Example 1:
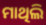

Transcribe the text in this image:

ମାଥିଲି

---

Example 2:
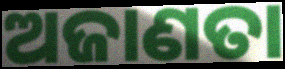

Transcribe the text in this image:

ଅଜାଣତା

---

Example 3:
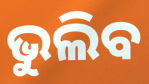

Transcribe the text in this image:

ଭୁଲିବ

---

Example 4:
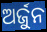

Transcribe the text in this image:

ଅର୍ଜୁନ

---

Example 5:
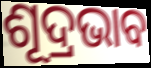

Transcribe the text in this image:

ଶୂଦ୍ରଭାବ